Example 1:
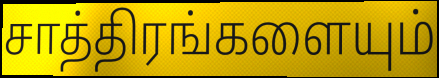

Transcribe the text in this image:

சாத்திரங்களையும்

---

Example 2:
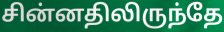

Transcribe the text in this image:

சின்னதிலிருந்தே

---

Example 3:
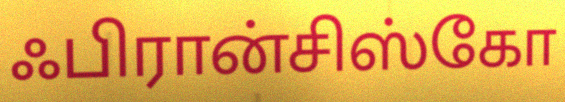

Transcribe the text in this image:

ஃபிரான்சிஸ்கோ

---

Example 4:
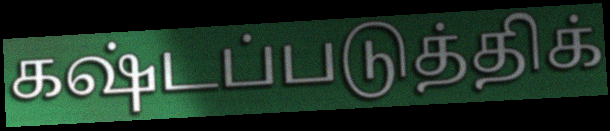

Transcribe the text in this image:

கஷ்டப்படுத்திக்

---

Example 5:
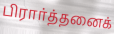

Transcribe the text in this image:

பிரார்த்தனைக்